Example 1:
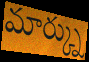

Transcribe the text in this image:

మార్క్ను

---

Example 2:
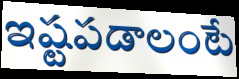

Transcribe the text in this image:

ఇష్టపడాలంటే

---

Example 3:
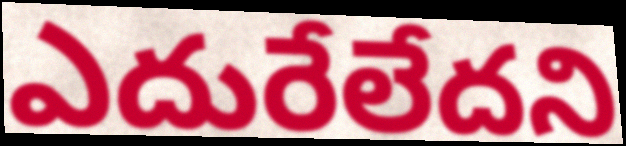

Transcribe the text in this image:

ఎదురేలేదని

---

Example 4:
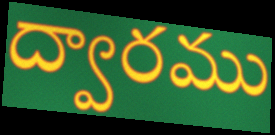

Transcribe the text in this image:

ద్వారము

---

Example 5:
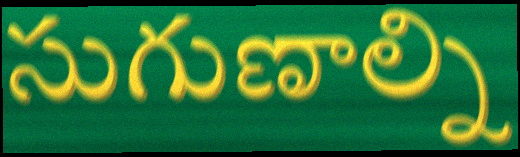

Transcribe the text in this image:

సుగుణాల్ని